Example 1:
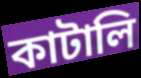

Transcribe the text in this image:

কাটালি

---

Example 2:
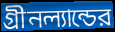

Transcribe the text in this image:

গ্রীনল্যান্ডের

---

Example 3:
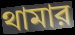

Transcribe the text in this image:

থামার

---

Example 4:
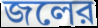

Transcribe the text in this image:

জলের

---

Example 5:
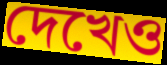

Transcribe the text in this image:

দেখেও